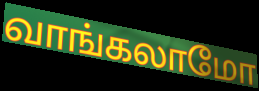
வாங்கலாமோ